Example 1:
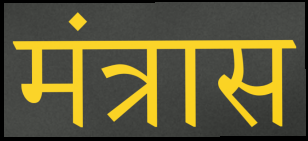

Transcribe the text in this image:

मंत्रास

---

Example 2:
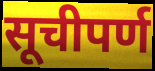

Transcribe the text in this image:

सूचीपर्ण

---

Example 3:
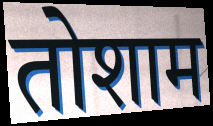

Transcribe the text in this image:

तोशाम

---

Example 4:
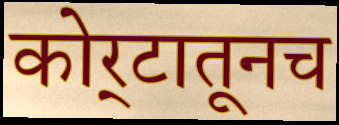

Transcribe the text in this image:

कोर्टातूनच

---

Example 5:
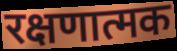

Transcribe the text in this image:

रक्षणात्मक